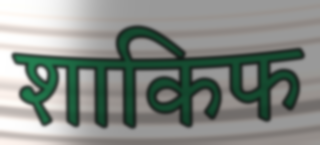
शाकिफ